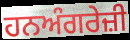
ਹਨਅੰਗਰੇਜ਼ੀ